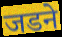
जडने